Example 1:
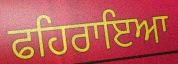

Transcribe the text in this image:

ਫਹਿਰਾਇਆ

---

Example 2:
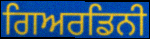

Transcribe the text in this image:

ਗਿਅਰਡਿਨੀ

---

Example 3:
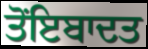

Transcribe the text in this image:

ਤੋਂਇਬਾਦਤ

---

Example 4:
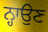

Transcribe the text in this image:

ਨ੍ਹਾਉਣ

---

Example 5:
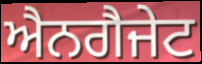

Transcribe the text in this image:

ਐਨਗੈਜੇਟ